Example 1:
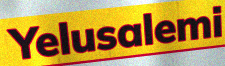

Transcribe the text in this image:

Yelusalemi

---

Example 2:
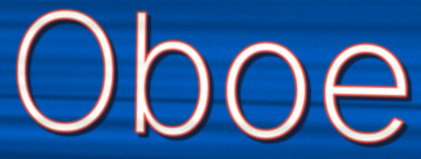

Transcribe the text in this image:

Oboe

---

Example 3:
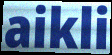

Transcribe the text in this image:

aikli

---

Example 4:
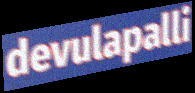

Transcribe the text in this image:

devulapalli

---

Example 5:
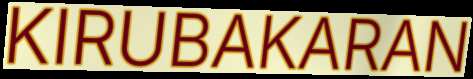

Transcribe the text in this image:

KIRUBAKARAN